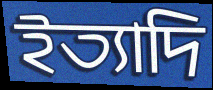
ইত্যাদি